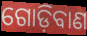
ଗୋଡ଼ିବାଣ